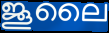
ജൂലൈ